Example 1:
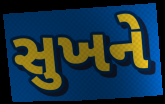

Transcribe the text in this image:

સુખને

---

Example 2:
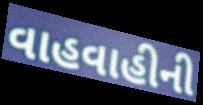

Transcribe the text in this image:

વાહવાહીની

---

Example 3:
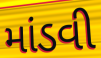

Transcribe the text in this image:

માંડવી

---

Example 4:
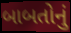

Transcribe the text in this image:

બાબતોનું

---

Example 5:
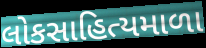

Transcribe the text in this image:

લોકસાહિત્યમાળા